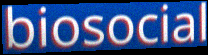
biosocial